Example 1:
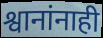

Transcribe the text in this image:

श्वानांनाही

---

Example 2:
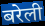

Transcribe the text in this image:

बरेली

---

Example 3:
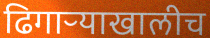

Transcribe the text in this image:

ढिगाऱ्याखालीच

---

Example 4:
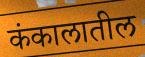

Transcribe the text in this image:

कंकालातील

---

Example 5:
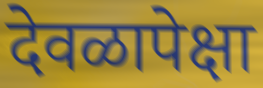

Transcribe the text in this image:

देवळापेक्षा